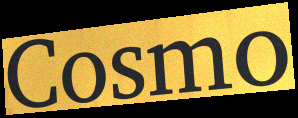
Cosmo